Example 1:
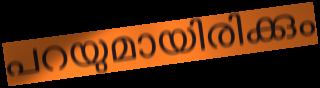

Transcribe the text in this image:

പറയുമായിരിക്കും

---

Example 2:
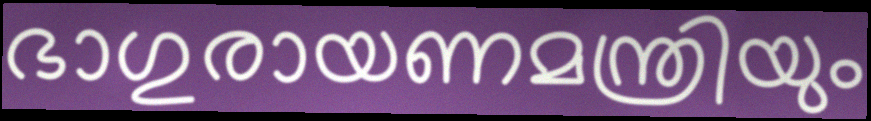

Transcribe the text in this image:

ഭാഗുരായണമന്ത്രിയും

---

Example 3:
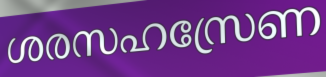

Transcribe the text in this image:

ശരസഹസ്രേണ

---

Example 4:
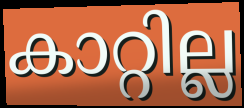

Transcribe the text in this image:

കാറ്റില്ല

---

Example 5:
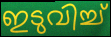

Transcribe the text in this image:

ഇടുവിച്ച്